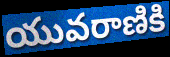
యువరాణికి